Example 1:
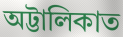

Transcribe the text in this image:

অট্টালিকাত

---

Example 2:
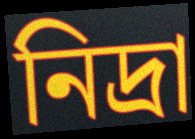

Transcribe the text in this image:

নিদ্ৰা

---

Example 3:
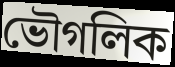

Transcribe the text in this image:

ভৌগলিক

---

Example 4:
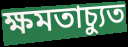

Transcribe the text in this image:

ক্ষমতাচ্যুত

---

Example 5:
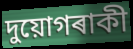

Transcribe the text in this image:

দুয়োগৰাকী